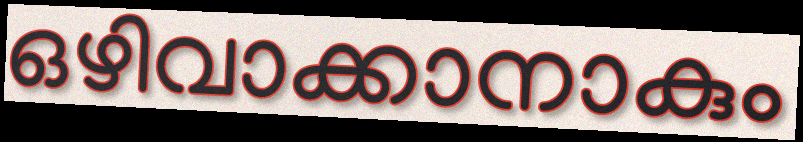
ഒഴിവാക്കാനാകും